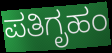
ಪತಿಗೃಹಂ